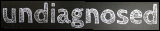
undiagnosed